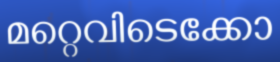
മറ്റെവിടെക്കോ